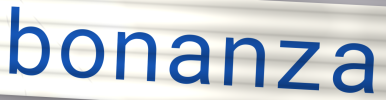
bonanza